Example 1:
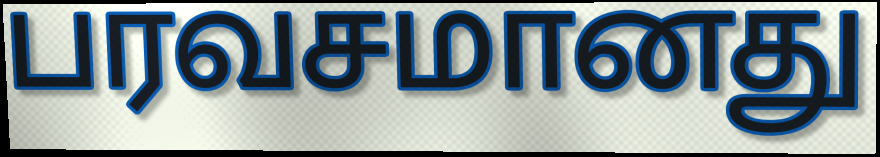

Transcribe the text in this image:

பரவசமானது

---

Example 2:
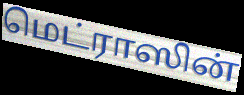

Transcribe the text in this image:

மெட்ராஸின்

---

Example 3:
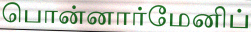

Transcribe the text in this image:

பொன்னார்மேனிப்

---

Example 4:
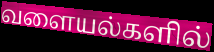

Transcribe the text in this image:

வளையல்களில்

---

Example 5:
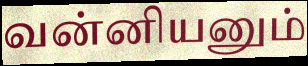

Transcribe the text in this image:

வன்னியனும்